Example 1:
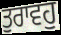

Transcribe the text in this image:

ਤੁਰਾਵਹੁ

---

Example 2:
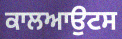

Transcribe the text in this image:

ਕਾਲਆਉਟਸ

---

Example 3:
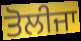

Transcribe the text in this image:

ਤੋਲੀਜਾ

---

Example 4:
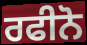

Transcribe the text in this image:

ਰਫੀਨੋ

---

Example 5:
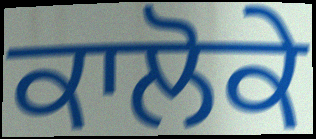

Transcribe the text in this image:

ਕਾਲੋਕੇ